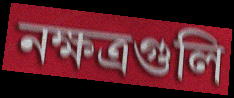
নক্ষত্রগুলি